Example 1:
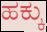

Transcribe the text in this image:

ಹಕ್ಕು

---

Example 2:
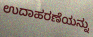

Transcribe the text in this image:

ಉದಾಹರಣೆಯನ್ನು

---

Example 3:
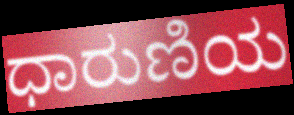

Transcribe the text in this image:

ಧಾರುಣಿಯ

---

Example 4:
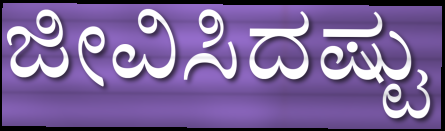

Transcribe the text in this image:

ಜೀವಿಸಿದಷ್ಟು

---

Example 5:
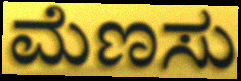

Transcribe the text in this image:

ಮೆಣಸು